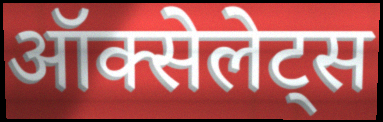
ऑक्सेलेट्स